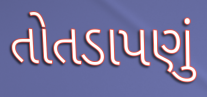
તોતડાપણું